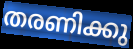
തരണിക്കു